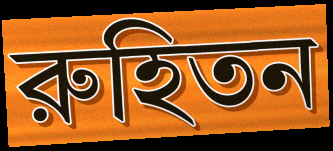
রুহিতন